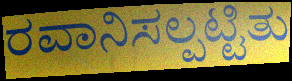
ರವಾನಿಸಲ್ಪಟ್ಟಿತು